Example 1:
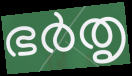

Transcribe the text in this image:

ഭർതൃ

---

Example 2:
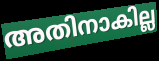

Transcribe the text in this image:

അതിനാകില്ല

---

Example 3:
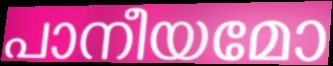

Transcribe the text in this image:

പാനീയമോ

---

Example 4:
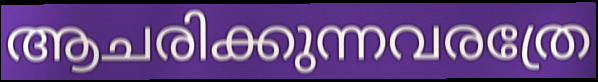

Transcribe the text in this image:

ആചരിക്കുന്നവരത്രേ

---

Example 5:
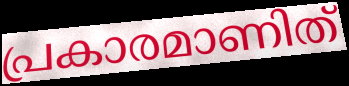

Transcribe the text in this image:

പ്രകാരമാണിത്